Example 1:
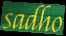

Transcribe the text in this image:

sadho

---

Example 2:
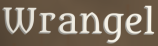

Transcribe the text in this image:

Wrangel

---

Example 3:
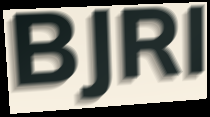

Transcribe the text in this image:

BJRI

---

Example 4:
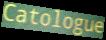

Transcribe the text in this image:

Catologue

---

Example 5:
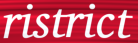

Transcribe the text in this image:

ristrict